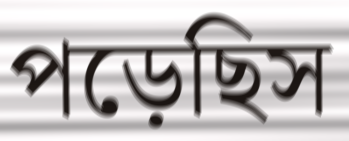
পড়েছিস